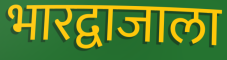
भारद्वाजाला